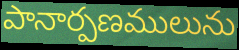
పానార్పణములును